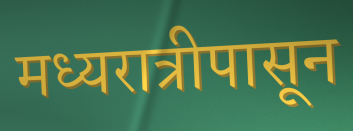
मध्यरात्रीपासून